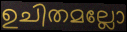
ഉചിതമല്ലോ